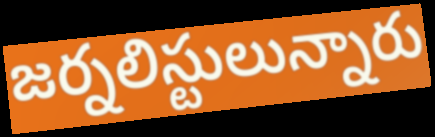
జర్నలిస్టులున్నారు